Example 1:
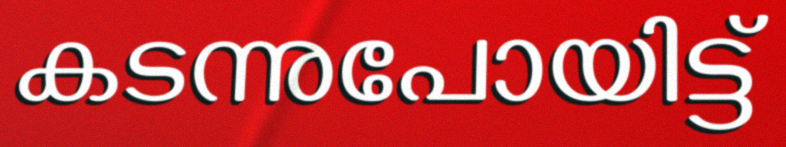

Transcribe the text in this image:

കടന്നുപോയിട്ട്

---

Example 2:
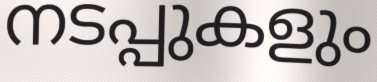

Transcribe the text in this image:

നടപ്പുകളും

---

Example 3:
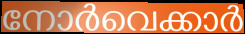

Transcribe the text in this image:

നോർവെക്കാർ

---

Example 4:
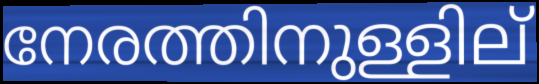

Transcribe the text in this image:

നേരത്തിനുള്ളില്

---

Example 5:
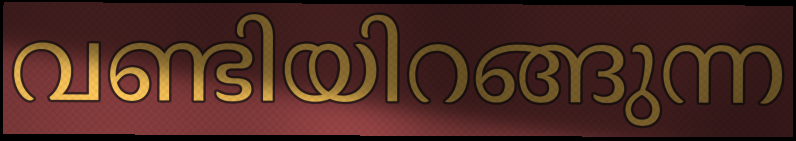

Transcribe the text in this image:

വണ്ടിയിറങ്ങുന്ന